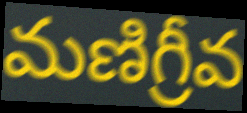
మణిగ్రీవ